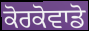
ਕੋਰਕੋਵਾਡੋ